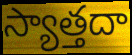
స్యాత్తదా